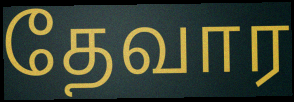
தேவார